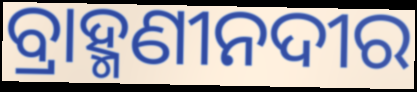
ବ୍ରାହ୍ମଣୀନଦୀର